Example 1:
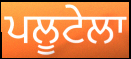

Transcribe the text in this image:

ਪਲੂਟੇਲਾ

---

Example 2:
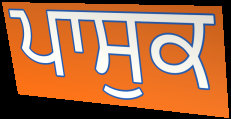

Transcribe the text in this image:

ਪਾਸੁਕ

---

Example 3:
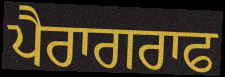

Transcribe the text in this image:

ਪੈਰਾਗਰਾਫ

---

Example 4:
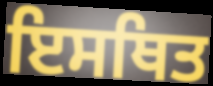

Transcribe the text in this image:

ਇਸਥਿਤ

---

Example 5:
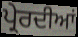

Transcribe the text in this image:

ਪ੍ਰੇਰਦੀਆਂ